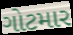
ગોટમાર